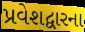
પ્રવેશદ્વારના